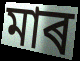
মাৰ